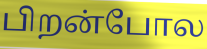
பிறன்போல